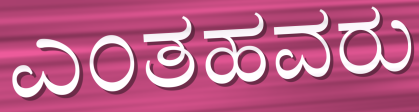
ಎಂತಹವರು